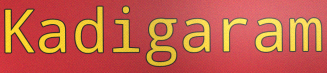
Kadigaram